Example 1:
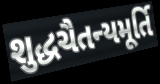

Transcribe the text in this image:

શુદ્ધચૈતન્યમૂર્તિ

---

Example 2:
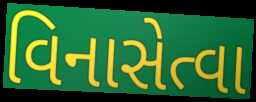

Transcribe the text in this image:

વિનાસેત્વા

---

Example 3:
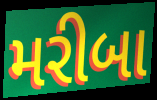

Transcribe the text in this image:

મરીબા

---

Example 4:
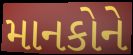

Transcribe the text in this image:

માનકોને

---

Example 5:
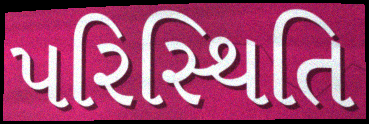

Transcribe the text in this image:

પરિસ્‍થિતિ